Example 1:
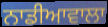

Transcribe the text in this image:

ਨਾਡੀਆਵਾਲਾ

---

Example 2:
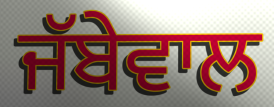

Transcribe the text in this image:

ਜੱਬੇਵਾਲ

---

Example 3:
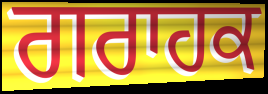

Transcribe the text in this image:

ਗਰਾਹਕ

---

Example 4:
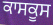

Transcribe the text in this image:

ਕਾਸਕੂਸ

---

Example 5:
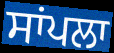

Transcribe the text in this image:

ਸਾਂਪਲਾ